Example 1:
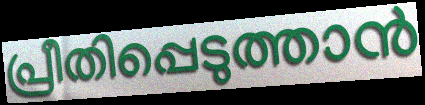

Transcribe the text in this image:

പ്രീതിപ്പെടുത്താൻ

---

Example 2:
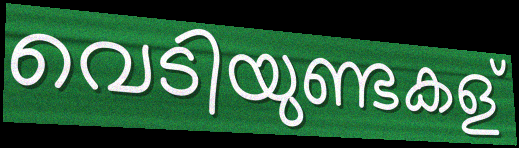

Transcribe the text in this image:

വെടിയുണ്ടകള്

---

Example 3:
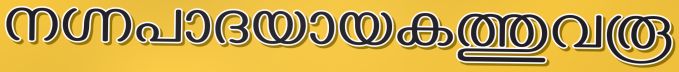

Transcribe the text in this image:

നഗ്നപാദയായകത്തുവരൂ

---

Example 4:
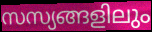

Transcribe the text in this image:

സസ്യങ്ങളിലും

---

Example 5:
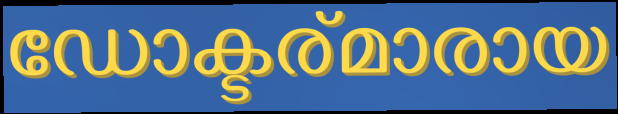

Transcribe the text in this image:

ഡോക്ടര്മാരായ